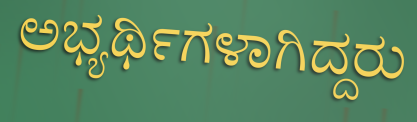
ಅಭ್ಯರ್ಥಿಗಳಾಗಿದ್ದರು